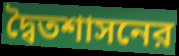
দ্বৈতশাসনের